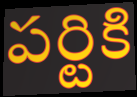
పర్టికి